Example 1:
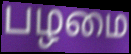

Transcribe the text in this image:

பழமை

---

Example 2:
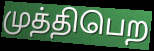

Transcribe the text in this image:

முத்திபெற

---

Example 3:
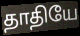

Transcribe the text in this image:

தாதியே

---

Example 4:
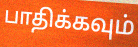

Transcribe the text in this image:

பாதிக்கவும்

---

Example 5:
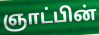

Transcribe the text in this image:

ஞாட்பின்